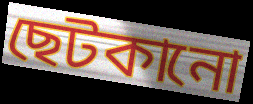
ছেটকানো